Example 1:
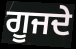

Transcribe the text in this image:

ਗੂਜਦੇ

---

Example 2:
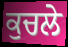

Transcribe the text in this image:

ਕੁਚਲੇ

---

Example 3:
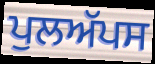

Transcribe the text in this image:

ਪੁਲਅੱਪਸ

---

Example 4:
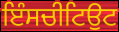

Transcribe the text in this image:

ਇੰਸਚੀਟਿਉਟ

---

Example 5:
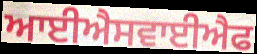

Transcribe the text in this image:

ਆਈਐਸਵਾਈਐਫ